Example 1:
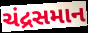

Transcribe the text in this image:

ચંદ્રસમાન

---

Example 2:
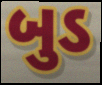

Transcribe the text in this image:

બુડ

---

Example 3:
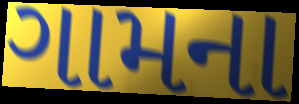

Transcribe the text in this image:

ગામના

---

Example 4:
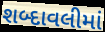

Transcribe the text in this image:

શબ્દાવલીમાં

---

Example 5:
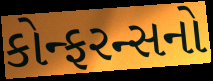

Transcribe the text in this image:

કોન્ફરન્સનો